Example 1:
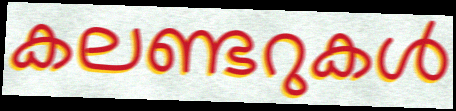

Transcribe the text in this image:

കലണ്ടറുകൾ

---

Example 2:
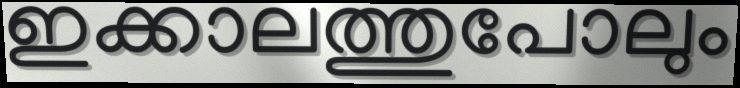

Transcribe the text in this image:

ഇക്കാലത്തുപോലും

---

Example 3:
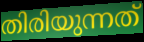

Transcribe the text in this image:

തിരിയുന്നത്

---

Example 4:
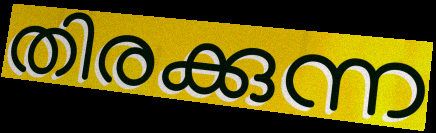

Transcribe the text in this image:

തിരക്കുന്ന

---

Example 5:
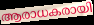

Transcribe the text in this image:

ആരാധകരായി